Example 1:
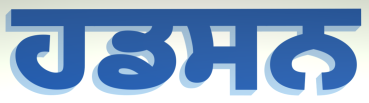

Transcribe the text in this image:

ਹਡਸਨ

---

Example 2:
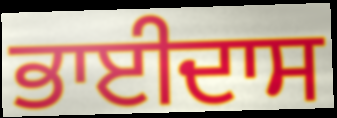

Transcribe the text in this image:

ਭਾਈਦਾਸ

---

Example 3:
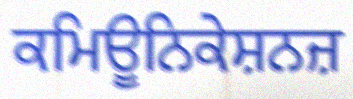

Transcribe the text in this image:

ਕਮਿਊਨਿਕੇਸ਼ਨਜ਼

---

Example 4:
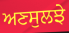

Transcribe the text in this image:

ਅਣਸੁਲਝੇ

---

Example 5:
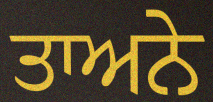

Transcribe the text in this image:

ਤਾਅਨੇ